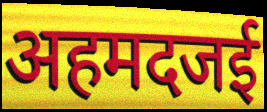
अहमदजई